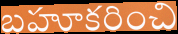
బహూకరించి